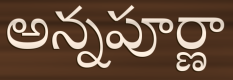
అన్నపూర్ణా